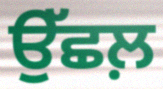
ਉੱਛਲ਼